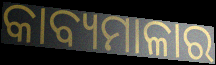
କାବ୍ୟମାଳାର